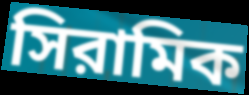
সিরামিক